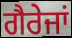
ਗੈਰੇਜਾਂ